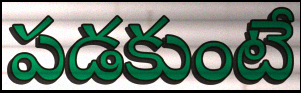
పడకుంటే